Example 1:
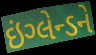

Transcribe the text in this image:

ઇંગ્લેન્ડને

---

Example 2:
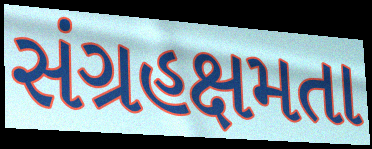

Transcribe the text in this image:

સંગ્રહક્ષમતા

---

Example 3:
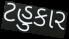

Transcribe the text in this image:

ટહુકાર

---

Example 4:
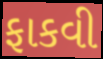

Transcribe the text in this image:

ફાકવી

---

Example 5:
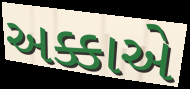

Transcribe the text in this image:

અક્કાએ